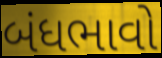
બંધભાવો